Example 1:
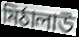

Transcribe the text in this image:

মিঠালাউ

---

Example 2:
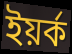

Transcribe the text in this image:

ইয়ৰ্ক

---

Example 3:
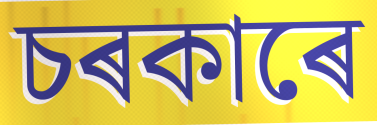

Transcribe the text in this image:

চৰকাৰে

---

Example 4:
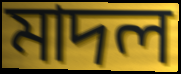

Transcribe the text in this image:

মাদল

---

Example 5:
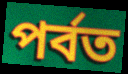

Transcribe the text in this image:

পৰ্বত